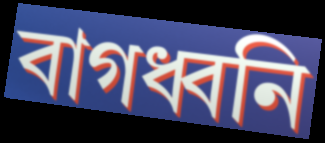
বাগধ্বনি